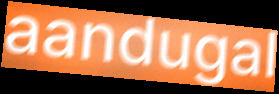
aandugal